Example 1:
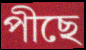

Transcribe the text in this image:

পীছে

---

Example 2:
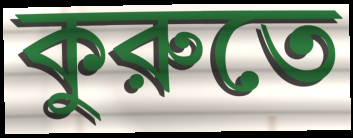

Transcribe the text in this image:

কুরুতে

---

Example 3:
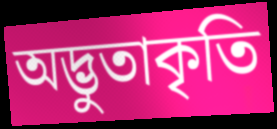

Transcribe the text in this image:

অদ্ভুতাকৃতি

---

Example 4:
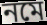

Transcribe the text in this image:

নমে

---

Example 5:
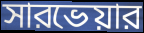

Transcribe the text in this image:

সারভেয়ার